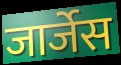
जार्जेस